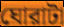
ঘোরাটা